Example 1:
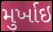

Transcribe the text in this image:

મુર્ખાઇ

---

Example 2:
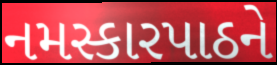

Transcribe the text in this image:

નમસ્કારપાઠને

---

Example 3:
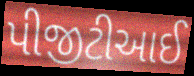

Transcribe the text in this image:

પીજીટીઆઈ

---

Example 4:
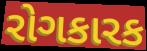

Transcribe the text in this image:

રોગકારક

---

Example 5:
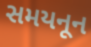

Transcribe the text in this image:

સમયનૂન